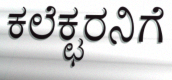
ಕಲೆಕ್ಟರನಿಗೆ